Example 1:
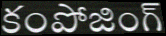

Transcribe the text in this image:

కంపోజింగ్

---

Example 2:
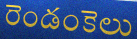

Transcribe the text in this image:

రెండంకెలు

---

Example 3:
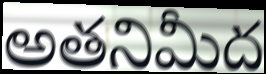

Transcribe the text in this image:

అతనిమీద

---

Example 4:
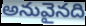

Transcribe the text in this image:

అనువైనది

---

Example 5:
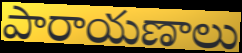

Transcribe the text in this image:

పారాయణాలు